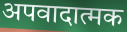
अपवादात्मक